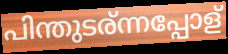
പിന്തുടര്ന്നപ്പോള്